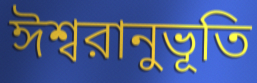
ঈশ্বরানুভূতি